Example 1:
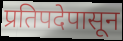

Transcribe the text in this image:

प्रतिपदेपासून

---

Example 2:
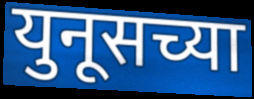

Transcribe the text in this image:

युनूसच्या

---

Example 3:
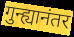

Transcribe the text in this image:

गुन्ह्यानंतर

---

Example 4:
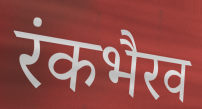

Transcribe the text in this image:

रंकभैरव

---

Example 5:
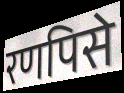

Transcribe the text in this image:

रणपिसे